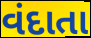
વંદાતા